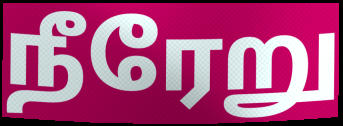
நீரேறு